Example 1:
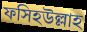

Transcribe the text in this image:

ফসিহউল্লাহ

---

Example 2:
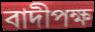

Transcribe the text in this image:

বাদীপক্ষ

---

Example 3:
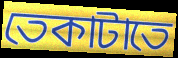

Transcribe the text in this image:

তেকাটাতে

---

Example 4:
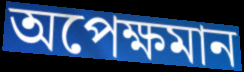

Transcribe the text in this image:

অপেক্ষমান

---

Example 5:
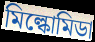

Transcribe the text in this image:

মিল্কোমিডা